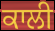
ਕਾਲੀ